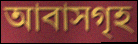
আবাসগৃহ